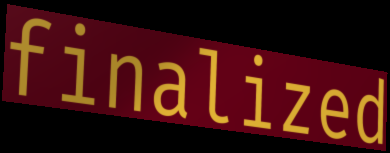
finalized